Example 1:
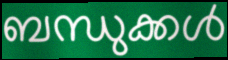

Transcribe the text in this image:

ബന്ധുക്കൾ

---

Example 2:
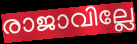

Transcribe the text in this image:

രാജാവില്ലേ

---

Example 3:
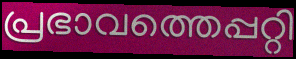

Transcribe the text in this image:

പ്രഭാവത്തെപ്പറ്റി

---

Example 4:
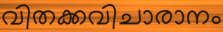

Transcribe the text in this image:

വിതക്കവിചാരാനം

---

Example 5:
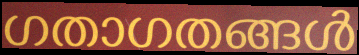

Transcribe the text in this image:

ഗതാഗതങ്ങൾ